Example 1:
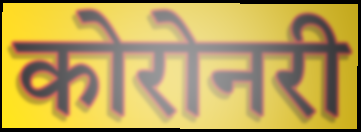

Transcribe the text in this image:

कोरोनरी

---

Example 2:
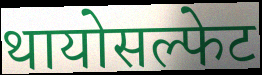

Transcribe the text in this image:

थायोसल्फेट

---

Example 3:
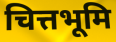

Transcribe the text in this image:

चित्तभूमि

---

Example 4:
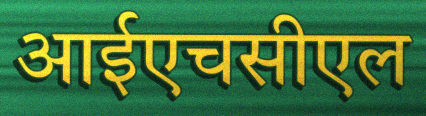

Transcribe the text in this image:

आईएचसीएल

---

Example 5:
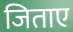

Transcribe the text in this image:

जिताए